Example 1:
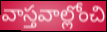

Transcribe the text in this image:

వాస్తవాల్లోంచి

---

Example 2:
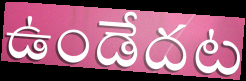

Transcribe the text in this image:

ఉండేదట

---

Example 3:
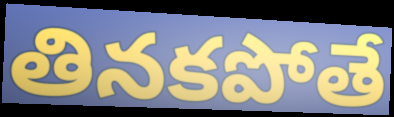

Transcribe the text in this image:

తినకపోతే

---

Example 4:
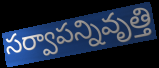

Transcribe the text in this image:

సర్వాపన్నివృత్తి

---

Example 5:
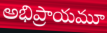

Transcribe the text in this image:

అభిప్రాయమూ